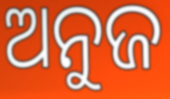
ଅନୁଜ